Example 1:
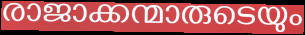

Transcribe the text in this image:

രാജാക്കന്മാരുടെയും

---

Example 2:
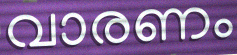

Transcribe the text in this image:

വാരണം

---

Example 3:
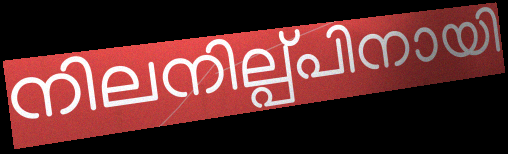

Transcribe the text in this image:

നിലനില്പ്പിനായി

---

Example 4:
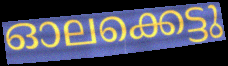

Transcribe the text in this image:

ഓലക്കെട്ടു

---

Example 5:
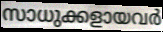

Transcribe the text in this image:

സാധുക്കളായവർ